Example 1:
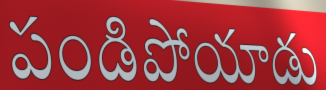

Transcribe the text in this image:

పండిపోయాడు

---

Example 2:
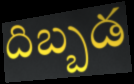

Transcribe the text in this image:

దిబ్బడ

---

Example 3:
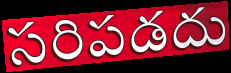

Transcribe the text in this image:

సరిపడదు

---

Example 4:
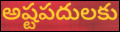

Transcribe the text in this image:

అష్టపదులకు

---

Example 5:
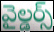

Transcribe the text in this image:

వైల్డర్స్